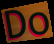
Do